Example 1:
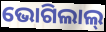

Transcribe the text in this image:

ଭୋଗିଲାଲ୍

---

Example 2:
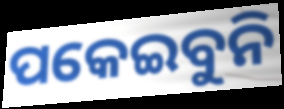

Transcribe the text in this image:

ପକେଇବୁନି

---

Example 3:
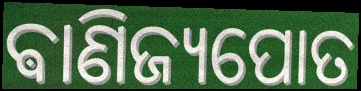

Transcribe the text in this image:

ଵାଣିଜ୍ୟପୋତ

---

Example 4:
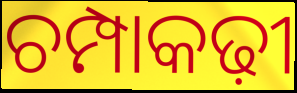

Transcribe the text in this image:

ଚମ୍ପାକଢ଼ୀ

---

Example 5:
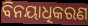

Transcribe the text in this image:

ବିନୟାଧିକରଣ